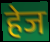
हेज